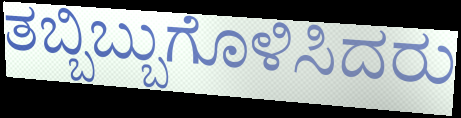
ತಬ್ಬಿಬ್ಬುಗೊಳಿಸಿದರು